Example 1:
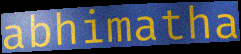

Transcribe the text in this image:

abhimatha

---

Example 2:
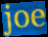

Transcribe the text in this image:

joe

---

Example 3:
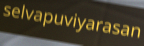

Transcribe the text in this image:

selvapuviyarasan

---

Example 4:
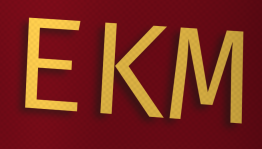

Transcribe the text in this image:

EKM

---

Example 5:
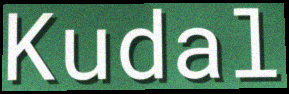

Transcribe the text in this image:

Kudal